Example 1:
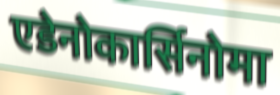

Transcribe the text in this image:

एडेनोकार्सिनोमा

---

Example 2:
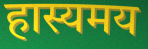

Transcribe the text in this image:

हास्यमय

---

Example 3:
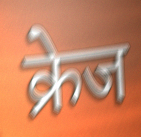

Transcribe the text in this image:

क्रेज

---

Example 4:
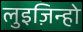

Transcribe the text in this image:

लुइज़िन्हो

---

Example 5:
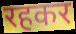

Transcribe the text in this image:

रहकर